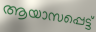
ആയാസപ്പെട്ട്